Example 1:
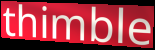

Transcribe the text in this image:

thimble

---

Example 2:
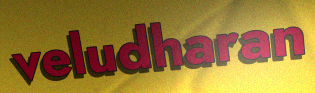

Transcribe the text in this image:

veludharan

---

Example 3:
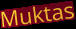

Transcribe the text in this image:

Muktas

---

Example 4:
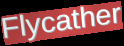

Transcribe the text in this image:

Flycather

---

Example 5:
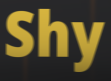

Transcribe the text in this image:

Shy